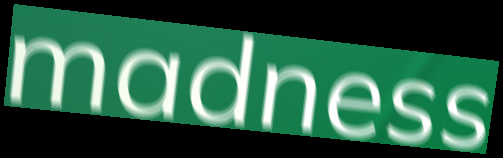
madness